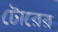
টোরের